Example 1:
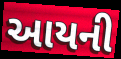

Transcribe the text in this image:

આયની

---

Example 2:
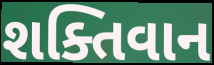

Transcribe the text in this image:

શક્તિવાન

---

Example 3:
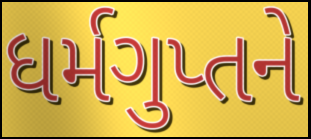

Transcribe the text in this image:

ધર્મગુપ્તને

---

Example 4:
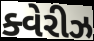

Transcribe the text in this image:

ક્વેરીઝ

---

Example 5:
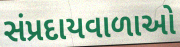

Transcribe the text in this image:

સંપ્રદાયવાળાઓ